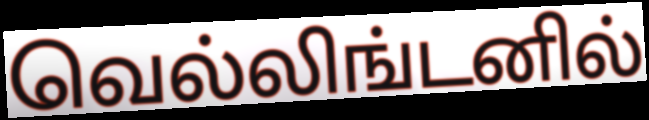
வெல்லிங்டனில்